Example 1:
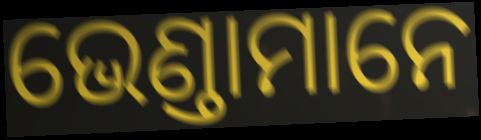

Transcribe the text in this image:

ଭେଣ୍ଡାମାନେ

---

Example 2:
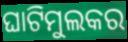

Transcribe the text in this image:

ଘାଟିମୁଲକର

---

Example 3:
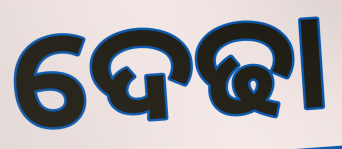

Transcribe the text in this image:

ଦେଢା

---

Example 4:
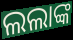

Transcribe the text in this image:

ଲଲାଙ୍କ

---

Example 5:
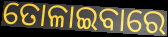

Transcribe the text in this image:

ତୋଳାଇବାରେ